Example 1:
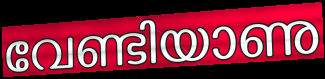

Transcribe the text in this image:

വേണ്ടിയാണു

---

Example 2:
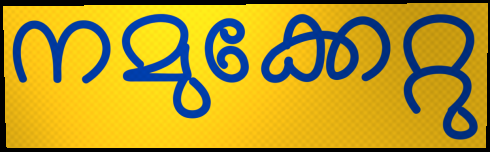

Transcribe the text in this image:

നമുക്കേറ്റു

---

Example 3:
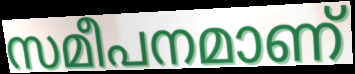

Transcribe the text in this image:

സമീപനമാണ്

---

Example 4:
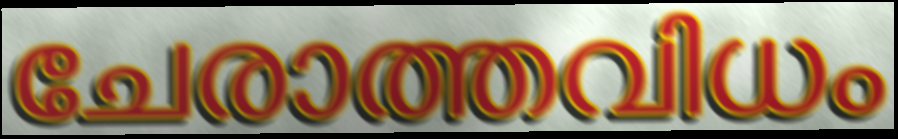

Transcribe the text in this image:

ചേരാത്തവിധം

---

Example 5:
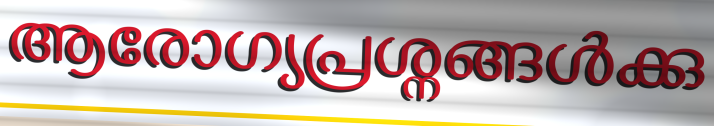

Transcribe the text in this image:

ആരോഗ്യപ്രശ്നങ്ങൾക്കു